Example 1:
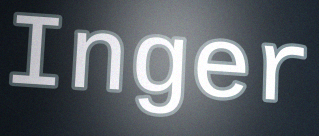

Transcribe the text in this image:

Inger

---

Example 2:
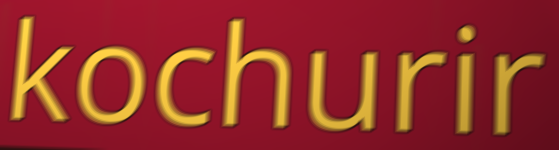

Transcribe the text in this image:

kochurir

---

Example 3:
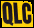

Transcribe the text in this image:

QLC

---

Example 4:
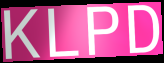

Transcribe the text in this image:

KLPD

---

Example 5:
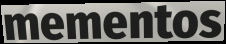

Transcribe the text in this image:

mementos